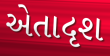
એતાદૃશ